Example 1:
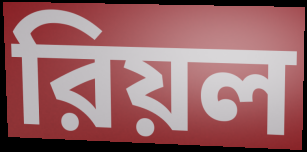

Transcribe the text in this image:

রিয়ল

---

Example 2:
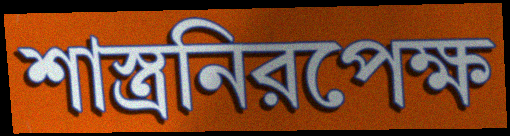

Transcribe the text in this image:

শাস্ত্রনিরপেক্ষ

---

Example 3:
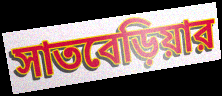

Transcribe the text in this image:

সাতবেড়িয়ার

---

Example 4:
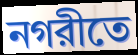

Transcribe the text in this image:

নগরীতে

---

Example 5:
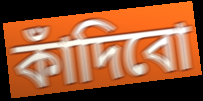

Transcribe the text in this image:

কাঁদিবো